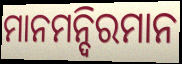
ମାନମନ୍ଦିରମାନ